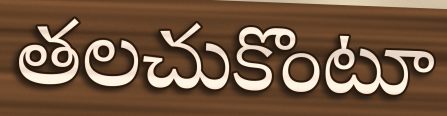
తలచుకొంటూ